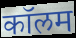
कॉलम